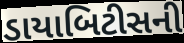
ડાયાબિટીસની